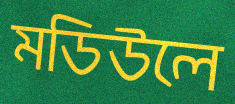
মডিউলে